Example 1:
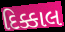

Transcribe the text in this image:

દિક્કાલ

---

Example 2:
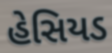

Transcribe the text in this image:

હેસિયડ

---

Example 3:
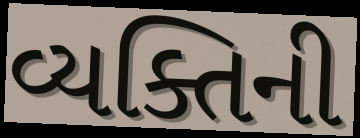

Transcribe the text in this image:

વ્યક્તિની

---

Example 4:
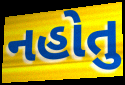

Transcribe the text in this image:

નહોતુ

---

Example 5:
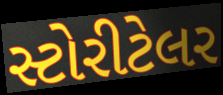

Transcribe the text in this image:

સ્ટોરીટેલર